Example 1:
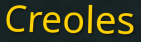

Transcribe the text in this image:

Creoles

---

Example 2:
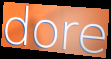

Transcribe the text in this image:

dore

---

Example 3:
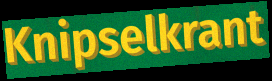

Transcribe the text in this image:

Knipselkrant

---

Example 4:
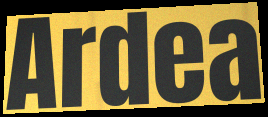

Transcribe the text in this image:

Ardea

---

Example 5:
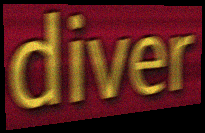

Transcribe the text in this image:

diver